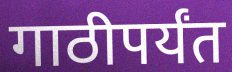
गाठीपर्यंत